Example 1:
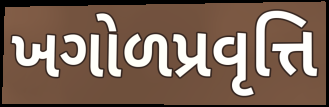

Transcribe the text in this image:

ખગોળપ્રવૃત્તિ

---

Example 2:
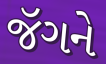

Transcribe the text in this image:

જૅગને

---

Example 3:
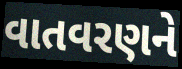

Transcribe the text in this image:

વાતવરણને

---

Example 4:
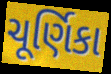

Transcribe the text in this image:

ચૂર્ણિકા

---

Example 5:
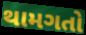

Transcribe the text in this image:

થામગતો